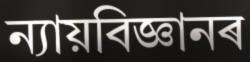
ন্যায়বিজ্ঞানৰ